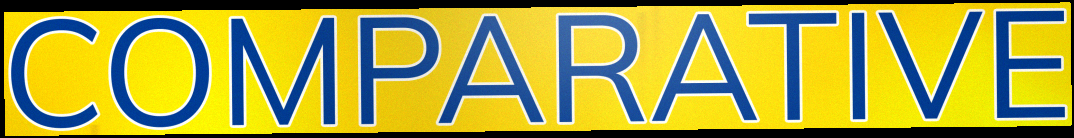
COMPARATIVE